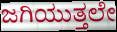
ಜಗಿಯುತ್ತಲೇ